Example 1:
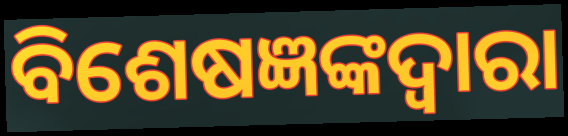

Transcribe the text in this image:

ବିଶେଷଜ୍ଞଙ୍କଦ୍ୱାରା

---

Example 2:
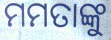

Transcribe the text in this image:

ମମତାଙ୍କୁ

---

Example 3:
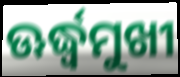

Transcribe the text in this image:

ଊର୍ଦ୍ଧ୍ବମୁଖୀ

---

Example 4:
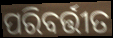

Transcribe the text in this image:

ପରିବର୍ତ୍ତୀତ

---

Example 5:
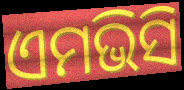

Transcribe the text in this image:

ଏମଭିସି